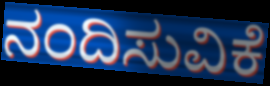
ನಂದಿಸುವಿಕೆ